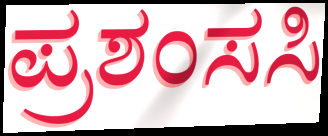
ಪ್ರಶಂಸಸಿ